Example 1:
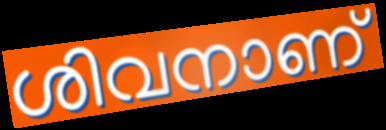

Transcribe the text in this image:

ശിവനാണ്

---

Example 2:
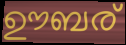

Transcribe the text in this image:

ഊബര്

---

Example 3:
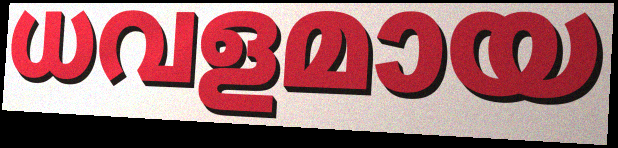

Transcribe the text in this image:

ധവളമായ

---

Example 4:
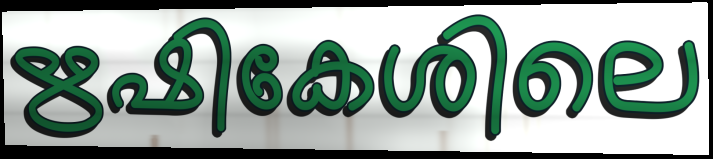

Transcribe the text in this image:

ഋഷികേശിലെ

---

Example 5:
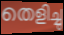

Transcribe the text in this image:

തെളിച്ചു